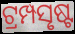
ଟ୍ରମ୍ପସୃଷ୍ଟ